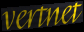
vertnet